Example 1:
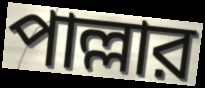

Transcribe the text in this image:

পাল্লার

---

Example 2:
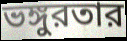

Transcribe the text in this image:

ভঙ্গুরতার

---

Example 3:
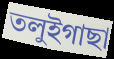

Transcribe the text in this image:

তলুইগাছা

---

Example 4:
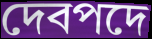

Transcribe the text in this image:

দেবপদে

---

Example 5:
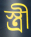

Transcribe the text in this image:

স্ত্রী